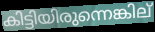
കിട്ടിയിരുന്നെങ്കില്